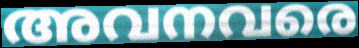
അവനവരെ